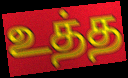
உத்த